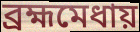
ব্রহ্মমেধায়